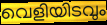
വെളിയിടവും